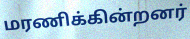
மரணிக்கின்றனர்